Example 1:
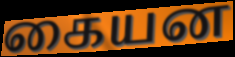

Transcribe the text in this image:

கையன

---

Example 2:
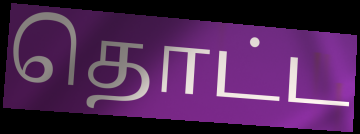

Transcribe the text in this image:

தொட்ட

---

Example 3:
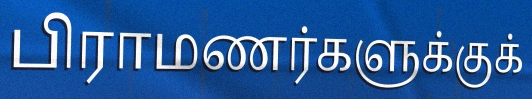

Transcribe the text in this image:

பிராமணர்களுக்குக்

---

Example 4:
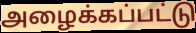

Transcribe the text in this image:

அழைக்கப்பட்டு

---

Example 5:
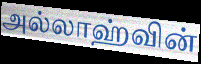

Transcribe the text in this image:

அல்லாஹ்வின்